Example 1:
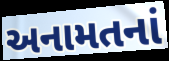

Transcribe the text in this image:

અનામતનાં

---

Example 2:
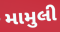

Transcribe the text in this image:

મામુલી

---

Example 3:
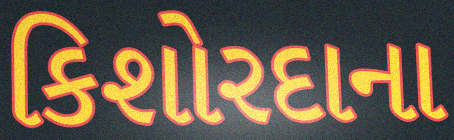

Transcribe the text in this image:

કિશોરદાના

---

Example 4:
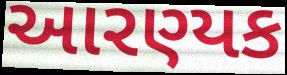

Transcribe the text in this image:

આરણ્યક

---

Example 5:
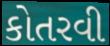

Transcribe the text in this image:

કોતરવી